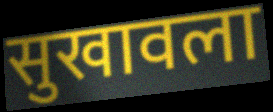
सुखावला